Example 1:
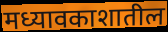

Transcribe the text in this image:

मध्यावकाशातील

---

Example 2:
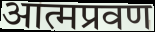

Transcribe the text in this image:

आत्मप्रवण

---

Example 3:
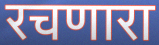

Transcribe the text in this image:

रचणारा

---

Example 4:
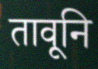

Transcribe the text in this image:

तावूनि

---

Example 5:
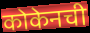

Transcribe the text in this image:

कोकेनची